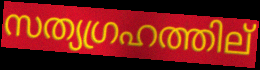
സത്യഗ്രഹത്തില്